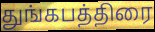
துங்கபத்திரை